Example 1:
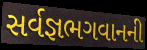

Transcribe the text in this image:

સર્વજ્ઞભગવાનની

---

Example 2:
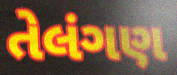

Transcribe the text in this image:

તેલંગણ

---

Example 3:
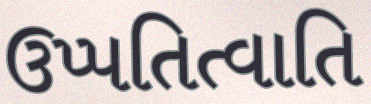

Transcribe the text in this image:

ઉપ્પતિત્વાતિ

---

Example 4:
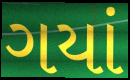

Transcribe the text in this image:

ગયાં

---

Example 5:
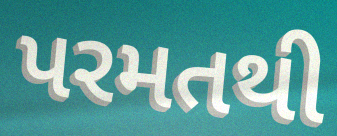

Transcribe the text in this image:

પરમતથી